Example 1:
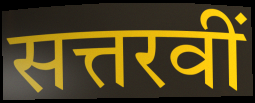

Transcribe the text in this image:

सत्तरवीं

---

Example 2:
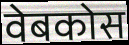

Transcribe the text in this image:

वेबकोस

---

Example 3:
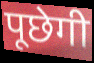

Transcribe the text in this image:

पूछेगी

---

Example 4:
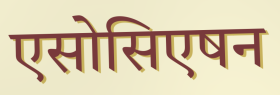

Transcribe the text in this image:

एसोसिएषन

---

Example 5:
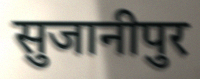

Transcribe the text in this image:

सुजानीपुर